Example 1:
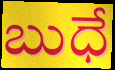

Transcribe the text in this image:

బుధే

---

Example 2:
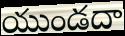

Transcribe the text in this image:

యుండదా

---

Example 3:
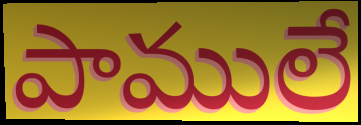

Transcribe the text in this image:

పాములే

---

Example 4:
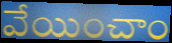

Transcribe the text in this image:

వేయించాం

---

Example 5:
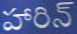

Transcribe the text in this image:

హారిన్